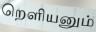
றெளியனும்